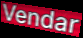
Vendar